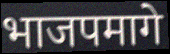
भाजपमागे